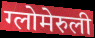
ग्लोमेरुली